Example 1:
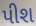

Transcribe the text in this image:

પીશ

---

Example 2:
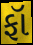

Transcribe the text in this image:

ફૉ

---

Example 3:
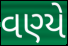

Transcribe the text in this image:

વણ્યે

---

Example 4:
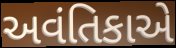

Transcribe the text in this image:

અવંતિકાએ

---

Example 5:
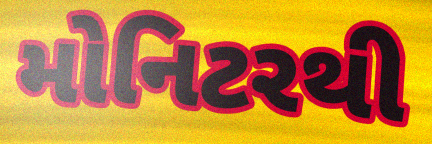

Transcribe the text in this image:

મોનિટરથી